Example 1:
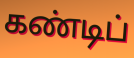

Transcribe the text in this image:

கண்டிப்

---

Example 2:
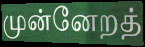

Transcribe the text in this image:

முன்னேறத்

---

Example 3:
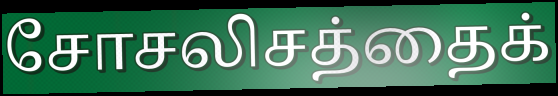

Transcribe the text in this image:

சோசலிசத்தைக்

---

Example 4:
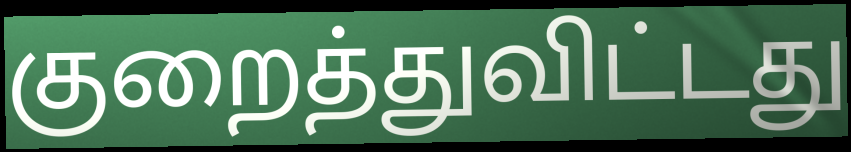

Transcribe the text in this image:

குறைத்துவிட்டது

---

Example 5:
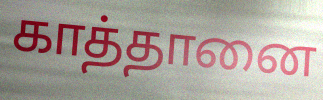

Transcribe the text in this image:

காத்தானை